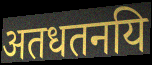
अतधतनयि